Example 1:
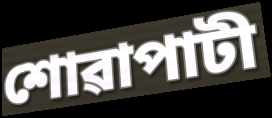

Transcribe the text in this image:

শোৱাপাটী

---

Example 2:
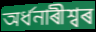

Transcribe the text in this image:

অৰ্ধনাৰীশ্বৰ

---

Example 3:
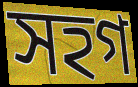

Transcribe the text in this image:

সহগ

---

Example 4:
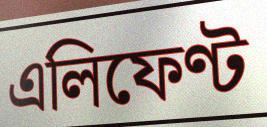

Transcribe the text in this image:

এলিফেণ্ট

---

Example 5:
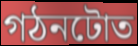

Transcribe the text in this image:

গঠনটোত